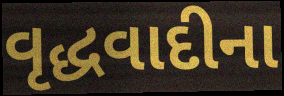
વૃદ્ધવાદીના